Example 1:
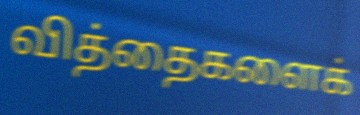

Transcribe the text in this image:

வித்தைகளைக்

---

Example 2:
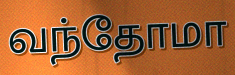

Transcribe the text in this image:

வந்தோமா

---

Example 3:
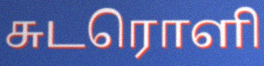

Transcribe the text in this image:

சுடரொளி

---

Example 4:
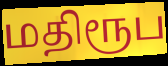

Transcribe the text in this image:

மதிரூப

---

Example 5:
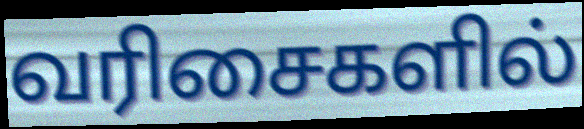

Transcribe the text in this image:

வரிசைகளில்